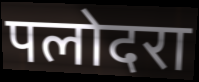
पलोदरा